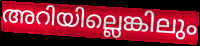
അറിയില്ലെങ്കിലും